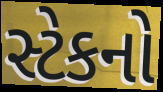
સ્ટેકનો